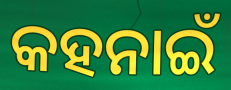
କହନାଇଁ